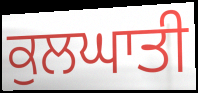
ਕੁਲਘਾਤੀ